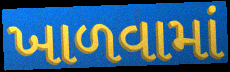
ખાળવામાં